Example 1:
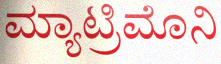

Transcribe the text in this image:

ಮ್ಯಾಟ್ರಿಮೊನಿ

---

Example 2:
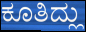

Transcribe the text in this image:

ಕೂತಿದ್ಲು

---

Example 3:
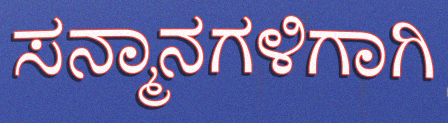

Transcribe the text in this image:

ಸನ್ಮಾನಗಳಿಗಾಗಿ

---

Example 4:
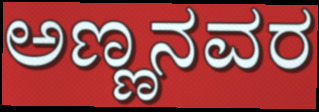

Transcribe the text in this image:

ಅಣ್ಣನವರ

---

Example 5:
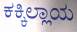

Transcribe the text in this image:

ಕಕ್ಕಿಲ್ಲಾಯ